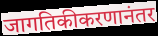
जागतिकीकरणानंतर